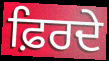
ਫ਼ਿਰਦੇ